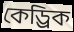
কেড্রিক